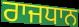
ਰਾਜਧਾਨ